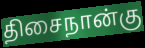
திசைநான்கு